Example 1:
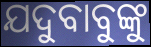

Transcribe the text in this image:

ଯଦୁବାବୁଙ୍କୁ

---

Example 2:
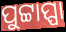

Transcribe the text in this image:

ପୁଟ୍ଟାପ୍ପା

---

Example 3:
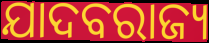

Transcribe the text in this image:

ଯାଦବରାଜ୍ୟ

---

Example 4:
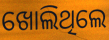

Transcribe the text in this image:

ଖୋଲିଥିଲେ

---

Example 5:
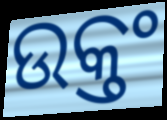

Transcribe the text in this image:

ଉକ୍ତଂ